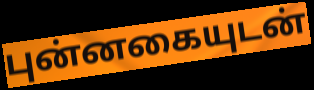
புன்னகையுடன்